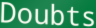
Doubts